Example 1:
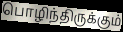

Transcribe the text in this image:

பொழிந்திருக்கும்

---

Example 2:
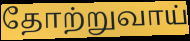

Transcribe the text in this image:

தோற்றுவாய்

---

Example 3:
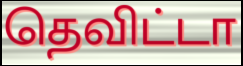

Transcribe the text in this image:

தெவிட்டா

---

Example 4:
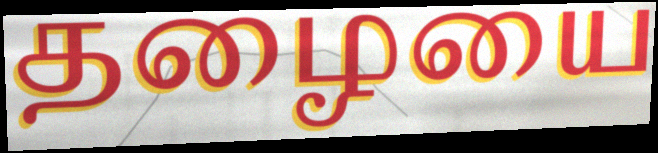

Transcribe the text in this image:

தழையை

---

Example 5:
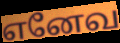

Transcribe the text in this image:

எனேவ